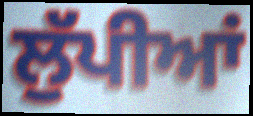
ਲੁੱਪੀਆਂ